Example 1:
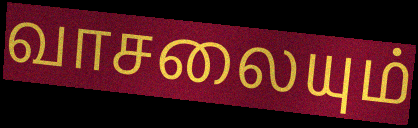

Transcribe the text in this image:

வாசலையும்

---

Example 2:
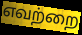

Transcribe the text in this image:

எவற்றை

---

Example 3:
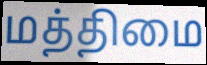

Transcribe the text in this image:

மத்திமை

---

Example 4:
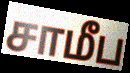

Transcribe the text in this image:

சாமீப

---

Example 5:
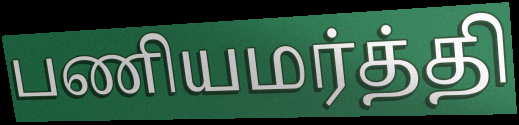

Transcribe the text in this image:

பணியமர்த்தி